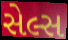
સેલ્સ